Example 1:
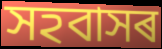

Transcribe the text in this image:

সহবাসৰ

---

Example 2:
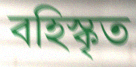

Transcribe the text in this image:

বহিস্কৃত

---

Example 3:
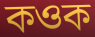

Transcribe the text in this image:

কওক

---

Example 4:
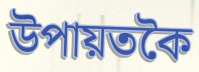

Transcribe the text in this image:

উপায়তকৈ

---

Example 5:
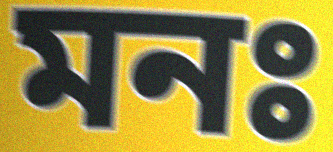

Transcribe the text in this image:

মনঃ